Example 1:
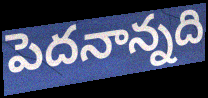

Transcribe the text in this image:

పెదనాన్నది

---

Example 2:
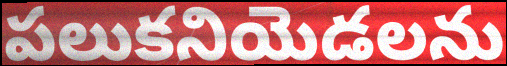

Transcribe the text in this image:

పలుకనియెడలను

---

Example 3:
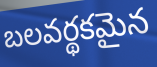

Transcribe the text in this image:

బలవర్థకమైన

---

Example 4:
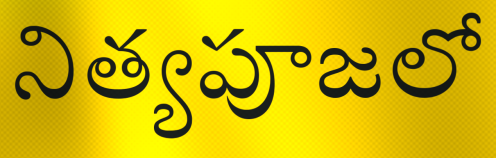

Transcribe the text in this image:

నిత్యపూజలో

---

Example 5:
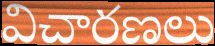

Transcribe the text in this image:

విచారణలు